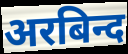
अरबिन्द